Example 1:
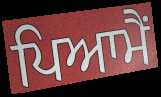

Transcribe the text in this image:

ਪਿਆਮੈਂ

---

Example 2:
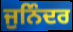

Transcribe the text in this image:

ਜੁਨਿੰਦਰ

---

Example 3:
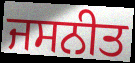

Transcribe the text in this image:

ਜਸਨੀਤ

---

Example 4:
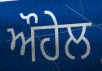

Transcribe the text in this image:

ਔਹੇਲ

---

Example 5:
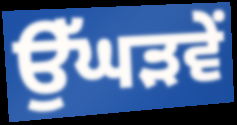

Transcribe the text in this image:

ਉੱਘੜਵੇਂ